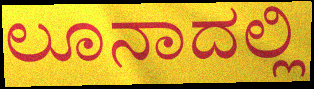
ಲೂನಾದಲ್ಲಿ